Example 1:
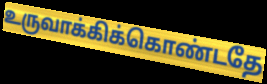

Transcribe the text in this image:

உருவாக்கிக்கொண்டதே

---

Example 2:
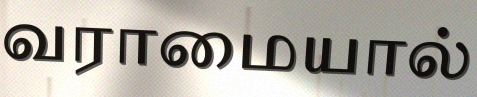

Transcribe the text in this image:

வராமையால்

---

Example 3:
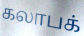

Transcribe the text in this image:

கலாபக்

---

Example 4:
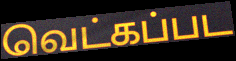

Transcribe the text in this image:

வெட்கப்பட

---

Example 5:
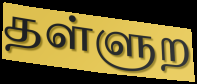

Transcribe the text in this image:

தள்ளுற